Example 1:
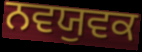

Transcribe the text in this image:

ਨਵਯੁਵਕ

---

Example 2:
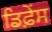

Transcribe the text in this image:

ਡਿਫ਼ੇਂਸ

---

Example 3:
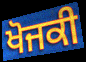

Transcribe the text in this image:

ਖੋਜਕੀ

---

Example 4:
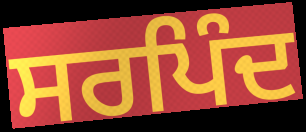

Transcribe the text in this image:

ਸਰਪਿੰਦ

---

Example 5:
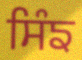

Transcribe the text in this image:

ਸਿੰਙ